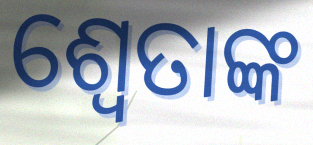
ଶ୍ଵେତାଙ୍କ